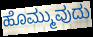
ಹೊಮ್ಮುವುದು